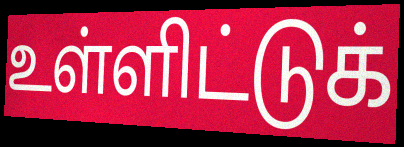
உள்ளிட்டுக்